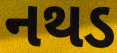
નથડ